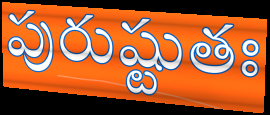
పురుష్టుతః